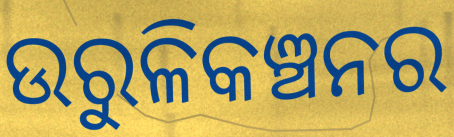
ଉରୁଳିକଞ୍ଚନର